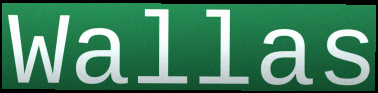
Wallas